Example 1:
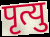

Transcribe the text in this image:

पृत्यु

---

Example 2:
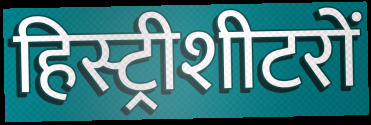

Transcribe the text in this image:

हिस्ट्रीशीटरों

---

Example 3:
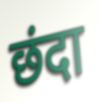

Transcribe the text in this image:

छंदा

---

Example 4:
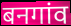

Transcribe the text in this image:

बनगांव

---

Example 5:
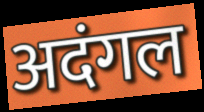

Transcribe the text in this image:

अदंगल